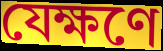
যেক্ষণে